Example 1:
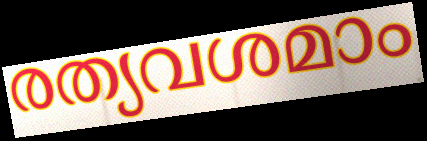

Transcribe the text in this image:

രത്യവശമാം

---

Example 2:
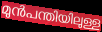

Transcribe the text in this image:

മുൻപന്തിയിലുള്ള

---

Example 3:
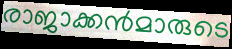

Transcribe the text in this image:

രാജാക്കൻമാരുടെ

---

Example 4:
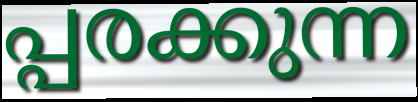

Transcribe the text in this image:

പ്പരക്കുന്ന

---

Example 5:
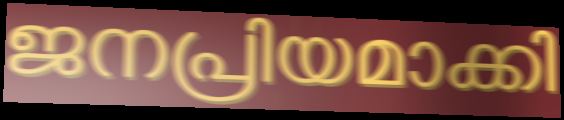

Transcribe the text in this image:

ജനപ്രിയമാക്കി